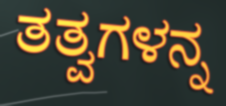
ತತ್ವಗಳನ್ನ